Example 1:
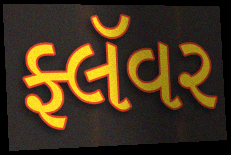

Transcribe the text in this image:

ફ્લૅવર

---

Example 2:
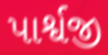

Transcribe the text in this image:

પાર્શ્વજી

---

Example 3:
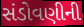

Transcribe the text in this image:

સંડોવણીની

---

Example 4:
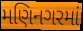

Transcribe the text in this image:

મણિનગરમાં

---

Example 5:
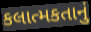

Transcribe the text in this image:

કલાત્મકતાનું